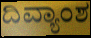
ದಿವ್ಯಾಂಶ